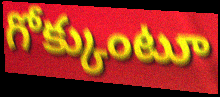
గోక్కుంటూ